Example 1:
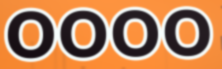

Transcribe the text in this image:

OOOO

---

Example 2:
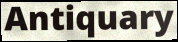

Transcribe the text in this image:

Antiquary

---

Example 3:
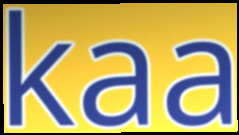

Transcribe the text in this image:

kaa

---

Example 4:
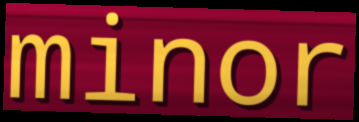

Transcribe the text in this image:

minor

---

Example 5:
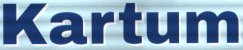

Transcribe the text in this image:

Kartum